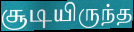
சூடியிருந்த